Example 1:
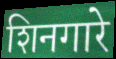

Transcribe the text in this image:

शिनगारे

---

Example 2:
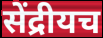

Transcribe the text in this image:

सेंद्रीयच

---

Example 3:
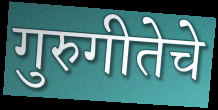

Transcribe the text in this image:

गुरुगीतेचे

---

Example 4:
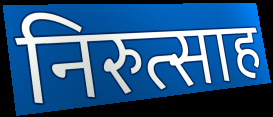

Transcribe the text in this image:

निरुत्साह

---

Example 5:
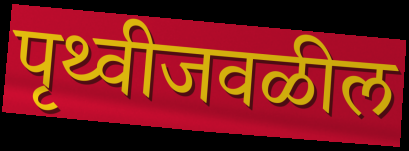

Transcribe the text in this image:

पृथ्वीजवळील